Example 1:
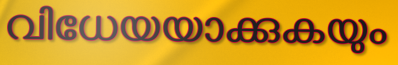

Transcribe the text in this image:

വിധേയയാക്കുകയും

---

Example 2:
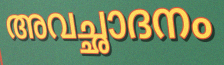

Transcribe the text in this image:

അവച്ഛാദനം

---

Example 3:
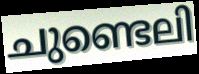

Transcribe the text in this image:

ചുണ്ടെലി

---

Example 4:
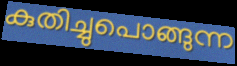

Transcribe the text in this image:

കുതിച്ചുപൊങ്ങുന്ന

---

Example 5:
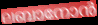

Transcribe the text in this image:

ലബാനോൻ